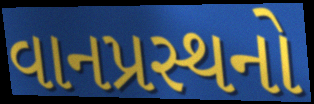
વાનપ્રસ્થનો